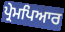
ਪ੍ਰੇਮਪਿਆਰ